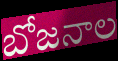
బోజనాల